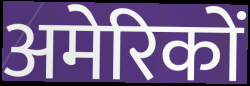
अमेरिकों